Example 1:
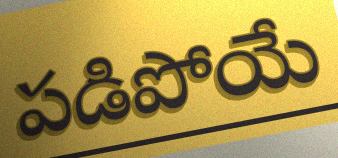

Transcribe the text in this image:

పడిపోయే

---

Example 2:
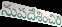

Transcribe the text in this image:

నుపదేశించిరి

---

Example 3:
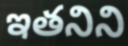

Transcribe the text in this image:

ఇతనిని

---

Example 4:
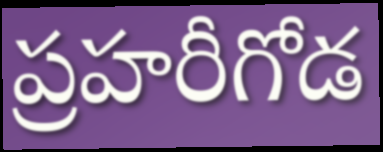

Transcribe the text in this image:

ప్రహరీగోడ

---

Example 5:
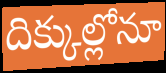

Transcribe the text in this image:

దిక్కుల్లోనూ